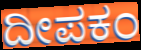
ದೀಪಕಂ